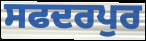
ਸਫਦਰਪੁਰ